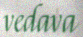
vedava